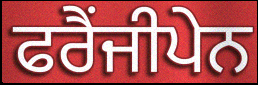
ਫਰੈਂਜੀਪੇਨ